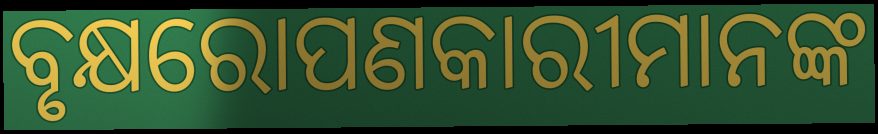
ବୃକ୍ଷରୋପଣକାରୀମାନଙ୍କ